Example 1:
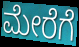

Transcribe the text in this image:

ಮೇರೆಗೆ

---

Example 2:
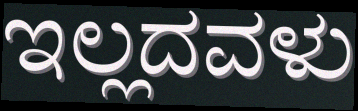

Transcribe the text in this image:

ಇಲ್ಲದವಳು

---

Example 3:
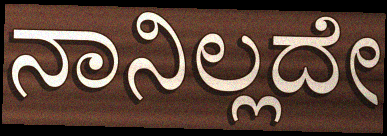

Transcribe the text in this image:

ನಾನಿಲ್ಲದೇ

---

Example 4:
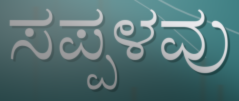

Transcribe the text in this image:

ಸಪ್ಪಳವು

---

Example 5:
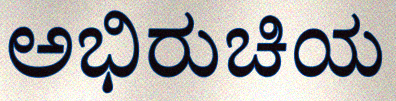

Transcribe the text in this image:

ಅಭಿರುಚಿಯ